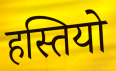
हस्तियो